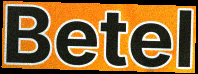
Betel